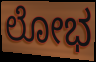
ಲೋಭ